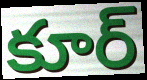
కూర్